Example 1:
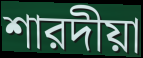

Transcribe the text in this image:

শারদীয়া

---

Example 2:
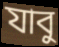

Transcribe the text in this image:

যাবু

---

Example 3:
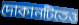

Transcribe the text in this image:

দোকানটিতেও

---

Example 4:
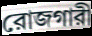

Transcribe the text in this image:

রোজগারী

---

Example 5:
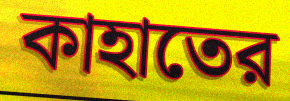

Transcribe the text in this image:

কাহাতের